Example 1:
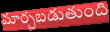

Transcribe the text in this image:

మార్చబడుతుంది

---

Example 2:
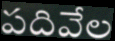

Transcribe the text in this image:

పదివేల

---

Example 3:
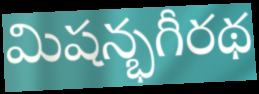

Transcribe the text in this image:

మిషన్భగీరథ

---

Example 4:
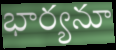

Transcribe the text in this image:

భార్యనూ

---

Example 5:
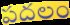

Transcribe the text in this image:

పదలం